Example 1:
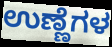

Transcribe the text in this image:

ಉಣ್ಣೆಗಳ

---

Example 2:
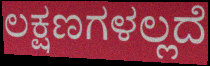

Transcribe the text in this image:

ಲಕ್ಷಣಗಳಲ್ಲದೆ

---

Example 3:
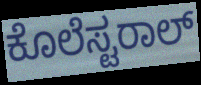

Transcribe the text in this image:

ಕೊಲೆಸ್ಟರಾಲ್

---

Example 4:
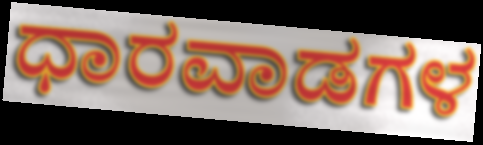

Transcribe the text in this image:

ಧಾರವಾಡಗಳ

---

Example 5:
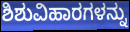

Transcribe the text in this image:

ಶಿಶುವಿಹಾರಗಳನ್ನು